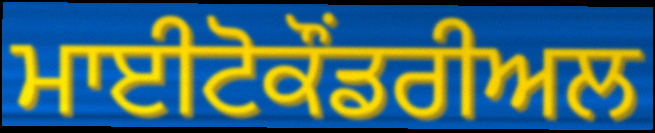
ਮਾਈਟੋਕੌਂਡਰੀਅਲ